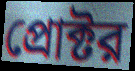
প্রোক্টর